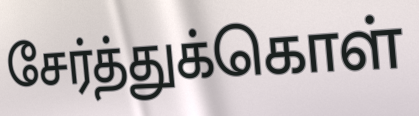
சேர்த்துக்கொள்